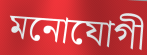
মনোযোগী